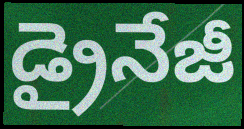
డ్రైనేజీ